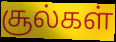
சூல்கள்